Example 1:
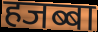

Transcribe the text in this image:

हजब्बा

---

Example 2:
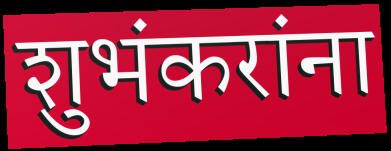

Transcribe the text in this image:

शुभंकरांना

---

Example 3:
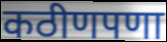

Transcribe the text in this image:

कठीणपणा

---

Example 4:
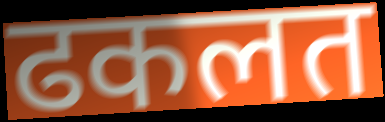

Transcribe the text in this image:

ढकलत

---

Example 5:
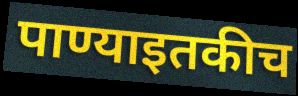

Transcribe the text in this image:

पाण्याइतकीच